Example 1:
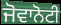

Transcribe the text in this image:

ਜੋਵਾਨੋਟੀ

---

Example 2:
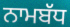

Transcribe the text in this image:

ਨਾਮਬੱਧ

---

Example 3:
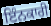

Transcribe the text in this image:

ਇੰਨਕਾਰੀ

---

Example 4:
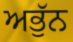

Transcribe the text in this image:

ਅਭੁੱਨ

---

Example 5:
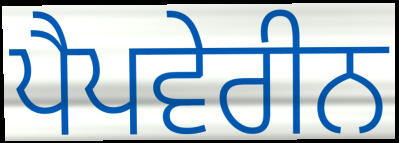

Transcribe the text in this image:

ਪੈਪਵੇਰੀਨ